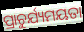
ପ୍ରାଚୁର୍ଯ୍ୟମୟତା